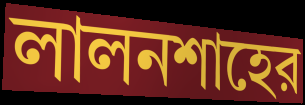
লালনশাহের